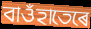
বাওঁহাতেৰে